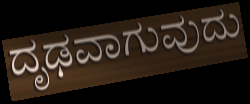
ದೃಢವಾಗುವುದು